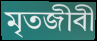
মৃতজীবী